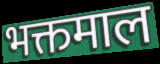
भक्तमाल